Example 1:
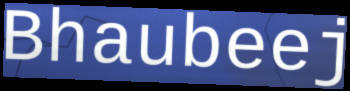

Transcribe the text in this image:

Bhaubeej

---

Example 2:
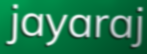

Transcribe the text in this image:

jayaraj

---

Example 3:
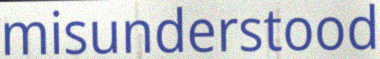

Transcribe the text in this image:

misunderstood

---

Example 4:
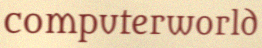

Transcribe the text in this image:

computerworld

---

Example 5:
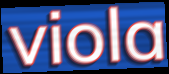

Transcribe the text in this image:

viola